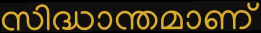
സിദ്ധാന്തമാണ്